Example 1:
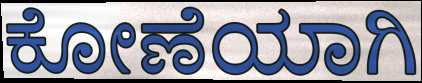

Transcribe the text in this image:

ಕೋಣೆಯಾಗಿ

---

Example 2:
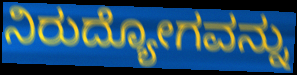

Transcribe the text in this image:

ನಿರುದ್ಯೋಗವನ್ನು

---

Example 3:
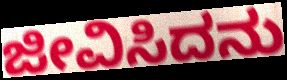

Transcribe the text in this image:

ಜೀವಿಸಿದನು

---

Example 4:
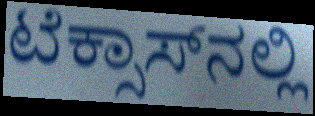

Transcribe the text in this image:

ಟೆಕ್ಸಾಸ್‌ನಲ್ಲಿ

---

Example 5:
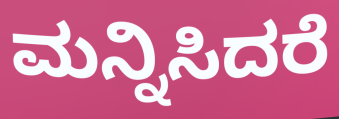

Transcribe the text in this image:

ಮನ್ನಿಸಿದರೆ